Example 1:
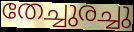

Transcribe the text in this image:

തേച്ചുരച്ചു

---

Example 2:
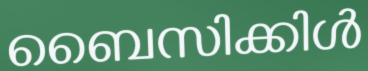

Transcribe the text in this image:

ബൈസിക്കിൾ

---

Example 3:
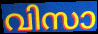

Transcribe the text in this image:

വിസാ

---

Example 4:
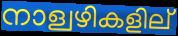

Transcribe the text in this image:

നാള്വഴികളില്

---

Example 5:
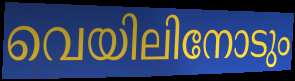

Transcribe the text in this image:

വെയിലിനോടും